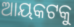
ଆୟକଟକୁ